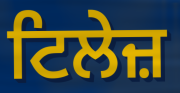
ਟਿਲੇਜ਼